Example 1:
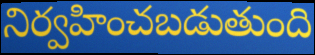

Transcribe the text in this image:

నిర్వహించబడుతుంది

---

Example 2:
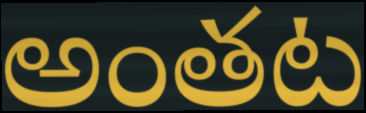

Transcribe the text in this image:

అంతట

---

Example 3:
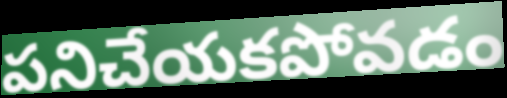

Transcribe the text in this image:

పనిచేయకపోవడం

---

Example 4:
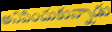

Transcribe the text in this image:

అనిపించుకున్నాడు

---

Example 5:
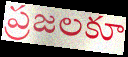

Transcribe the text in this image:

ప్రజలకూ